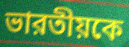
ভারতীয়কে